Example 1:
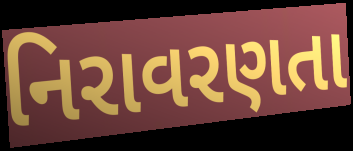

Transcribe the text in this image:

નિરાવરણતા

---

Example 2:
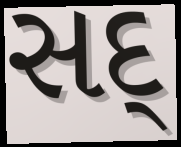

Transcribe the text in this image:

સદ્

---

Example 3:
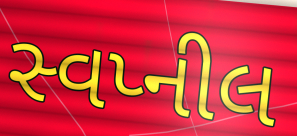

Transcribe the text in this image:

સ્વપ્નીલ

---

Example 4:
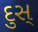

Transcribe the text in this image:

દુસ્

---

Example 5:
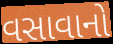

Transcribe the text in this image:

વસાવાનો